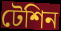
টেশিন